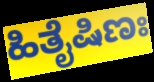
ಹಿತೈಷಿಣಃ